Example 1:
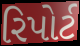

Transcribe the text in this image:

રિપોર્ટ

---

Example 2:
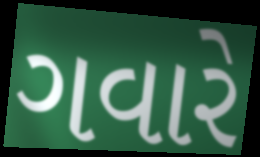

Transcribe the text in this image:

ગવારે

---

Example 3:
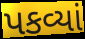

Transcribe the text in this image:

પકવ્યાં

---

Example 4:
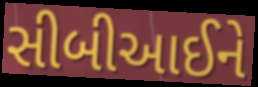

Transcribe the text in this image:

સીબીઆઈને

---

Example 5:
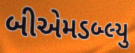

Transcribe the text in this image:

બીએમડબ્લ્યુ